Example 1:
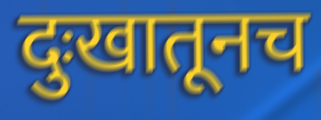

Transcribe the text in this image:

दुःखातूनच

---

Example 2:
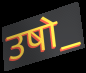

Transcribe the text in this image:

उषो॒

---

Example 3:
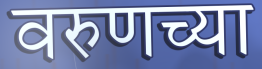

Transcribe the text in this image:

वरुणच्या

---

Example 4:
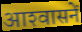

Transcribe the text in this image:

आश्वासनें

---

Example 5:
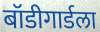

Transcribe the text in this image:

बॉडीगार्डला